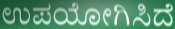
ಉಪಯೋಗಿಸಿದೆ